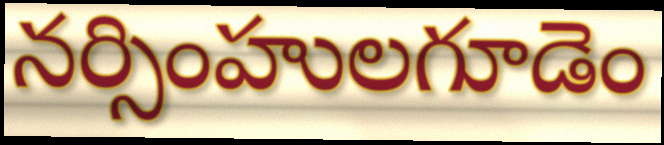
నర్సింహులగూడెం